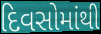
દિવસોમાંથી